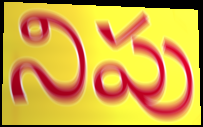
నిపు